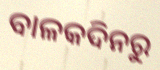
ବାଳକଦିନରୁ